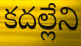
కదల్లేని